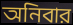
অনিবার